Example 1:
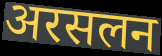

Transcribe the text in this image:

अरसलन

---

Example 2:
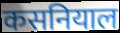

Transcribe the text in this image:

कसनियाल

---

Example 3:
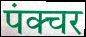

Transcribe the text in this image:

पंक्‍चर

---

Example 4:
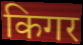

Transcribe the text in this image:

किगर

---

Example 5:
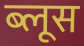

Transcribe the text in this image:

ब्लूस